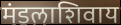
मंडलाशिवाय